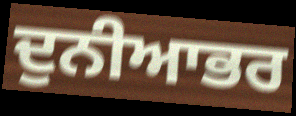
ਦੁਨੀਆਭਰ